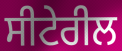
ਸੀਟੇਰੀਲ